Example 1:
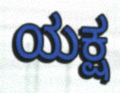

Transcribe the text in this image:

ಯಕ್ಷ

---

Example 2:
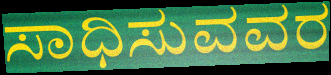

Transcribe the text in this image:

ಸಾಧಿಸುವವರ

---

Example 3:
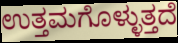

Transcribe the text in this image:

ಉತ್ತಮಗೊಳ್ಳುತ್ತದೆ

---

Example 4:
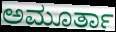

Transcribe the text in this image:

ಅಮೂರ್ತಾ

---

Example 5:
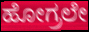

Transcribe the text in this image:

ಹೋಗ್ರಲೇ